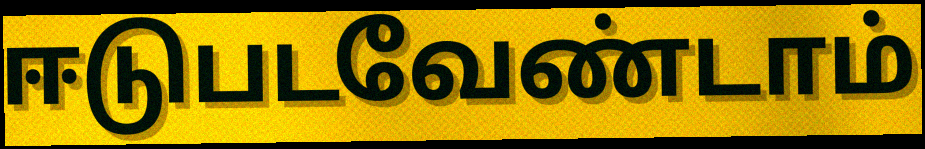
ஈடுபடவேண்டாம்